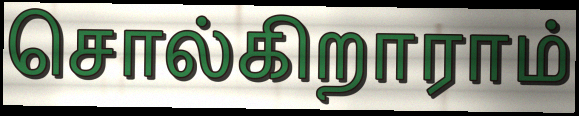
சொல்கிறாராம்